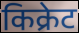
किक्रेट